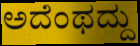
ಅದೆಂಥದ್ದು